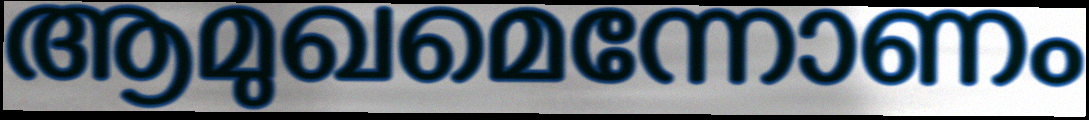
ആമുഖമെന്നോണം